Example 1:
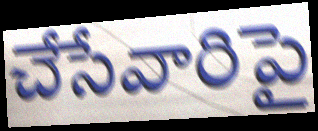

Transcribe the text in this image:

చేసేవారిపై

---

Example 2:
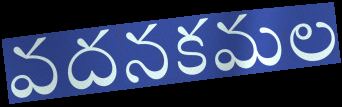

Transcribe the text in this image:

వదనకమల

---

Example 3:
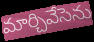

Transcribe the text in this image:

మార్చివేసెను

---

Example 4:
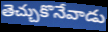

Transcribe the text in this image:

తెచ్చుకొనేవాడు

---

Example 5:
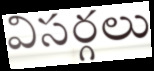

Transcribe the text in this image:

విసర్గలు